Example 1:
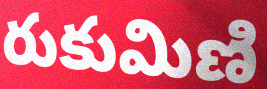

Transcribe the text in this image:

రుకుమిణి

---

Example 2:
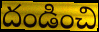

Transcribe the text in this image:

దండించి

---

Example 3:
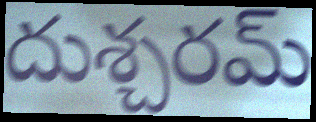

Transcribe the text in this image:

దుశ్చరమ్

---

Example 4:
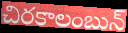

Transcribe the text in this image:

చిరకాలంబున్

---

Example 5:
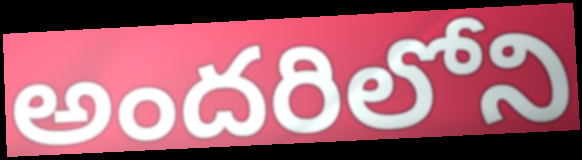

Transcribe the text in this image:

అందరిలోని